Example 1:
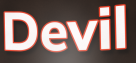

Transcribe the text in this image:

Devil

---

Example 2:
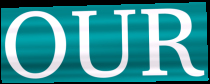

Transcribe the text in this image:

OUR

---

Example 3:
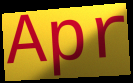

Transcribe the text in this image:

Apr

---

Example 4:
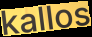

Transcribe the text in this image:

kallos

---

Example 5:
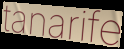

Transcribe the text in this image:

tanarife